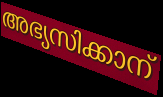
അഭ്യസിക്കാന്